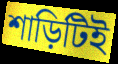
শাড়িটিই